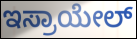
ಇಸ್ರಾಯೇಲ್